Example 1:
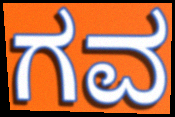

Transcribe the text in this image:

ಗವ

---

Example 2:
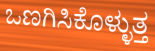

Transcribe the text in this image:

ಒಣಗಿಸಿಕೊಳ್ಳುತ್ತ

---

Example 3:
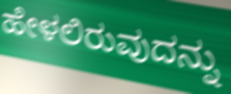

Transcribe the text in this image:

ಹೇಳಲಿರುವುದನ್ನು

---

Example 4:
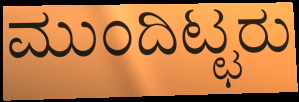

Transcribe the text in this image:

ಮುಂದಿಟ್ಟರು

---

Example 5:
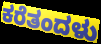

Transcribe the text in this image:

ಕರೆತಂದಳು